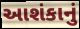
આશંકાનું